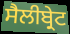
ਸੈਲੀਬ੍ਰੇਟ